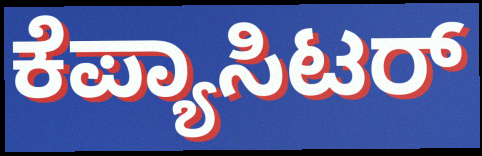
ಕೆಪ್ಯಾಸಿಟರ್